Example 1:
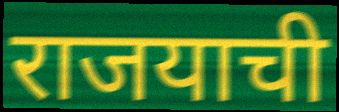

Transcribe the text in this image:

राजयाची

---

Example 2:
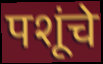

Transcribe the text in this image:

पशूंचे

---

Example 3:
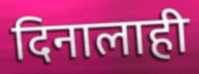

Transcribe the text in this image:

दिनालाही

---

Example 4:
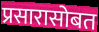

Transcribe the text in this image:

प्रसारासोबत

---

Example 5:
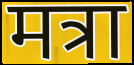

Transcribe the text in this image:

मत्रा